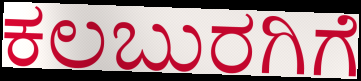
ಕಲಬುರಗಿಗೆ